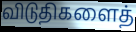
விடுதிகளைத்